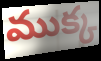
ముక్క